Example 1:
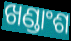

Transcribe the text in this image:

ଖଣ୍ଡାଂଶ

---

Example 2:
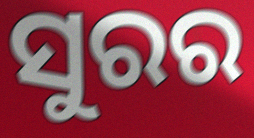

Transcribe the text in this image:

ସୁରର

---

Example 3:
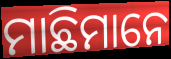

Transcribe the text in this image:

ମାଛିମାନେ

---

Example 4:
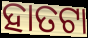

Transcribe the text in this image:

ହାତଟା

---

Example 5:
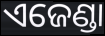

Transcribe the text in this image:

ଏଜେଣ୍ଡା